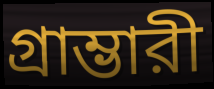
গ্রাম্ভারী